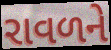
રાવળને